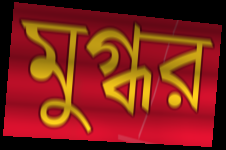
মুগ্ধর